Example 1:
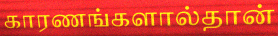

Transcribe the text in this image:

காரணங்களால்தான்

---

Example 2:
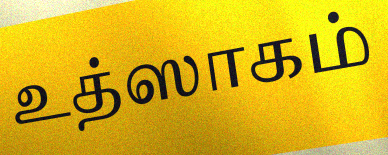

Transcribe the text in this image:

உத்ஸாகம்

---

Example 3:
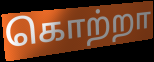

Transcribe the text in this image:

கொற்றா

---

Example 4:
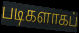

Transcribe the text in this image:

படிகளாகப்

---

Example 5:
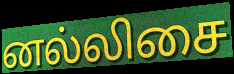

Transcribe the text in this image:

னல்லிசை